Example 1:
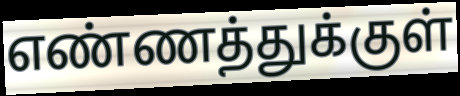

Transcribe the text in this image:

எண்ணத்துக்குள்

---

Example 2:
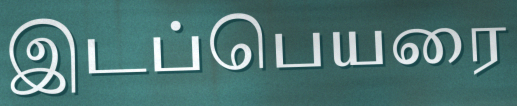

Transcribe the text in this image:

இடப்பெயரை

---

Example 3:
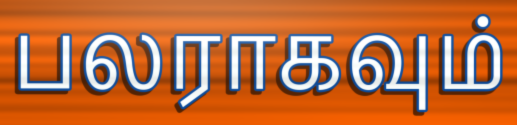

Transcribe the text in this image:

பலராகவும்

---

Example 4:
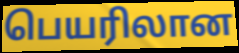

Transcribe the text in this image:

பெயரிலான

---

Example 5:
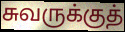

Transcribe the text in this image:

சுவருக்குத்